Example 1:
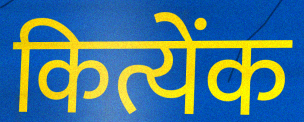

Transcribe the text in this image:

कित्येंक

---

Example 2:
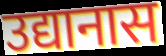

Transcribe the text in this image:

उद्यानास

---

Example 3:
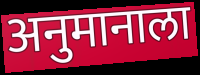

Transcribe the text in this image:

अनुमानाला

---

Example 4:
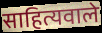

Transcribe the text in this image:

साहित्यवाले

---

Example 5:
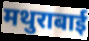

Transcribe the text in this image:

मथुराबाई